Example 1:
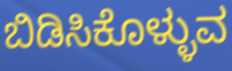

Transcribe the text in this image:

ಬಿಡಿಸಿಕೊಳ್ಳುವ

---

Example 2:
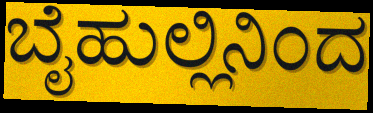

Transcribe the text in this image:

ಬೈಹುಲ್ಲಿನಿಂದ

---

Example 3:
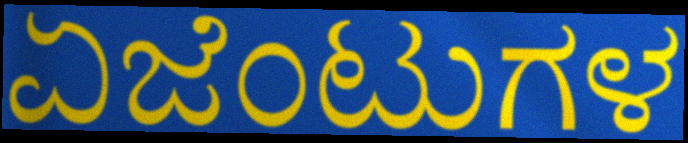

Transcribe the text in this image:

ಏಜೆಂಟುಗಳ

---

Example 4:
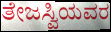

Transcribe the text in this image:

ತೇಜಸ್ವಿಯವರ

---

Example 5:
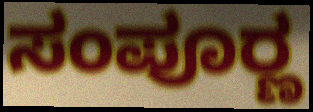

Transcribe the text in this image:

ಸಂಪೂರ್‍ಣ